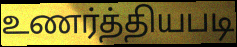
உணர்த்தியபடி